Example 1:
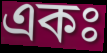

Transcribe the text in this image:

একঃ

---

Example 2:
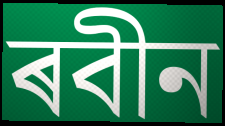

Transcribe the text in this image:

ৰবীন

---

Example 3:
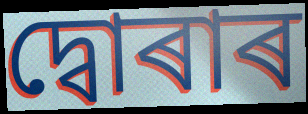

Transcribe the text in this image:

দ্বোৰাৰ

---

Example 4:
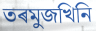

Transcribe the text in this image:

তৰমুজখিনি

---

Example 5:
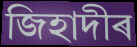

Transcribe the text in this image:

জিহাদীৰ